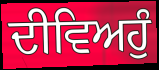
ਦੀਵਿਅਹੁੰ